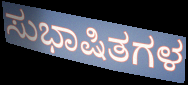
ಸುಭಾಷಿತಗಳ